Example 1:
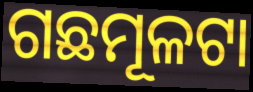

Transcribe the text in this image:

ଗଛମୂଳଟା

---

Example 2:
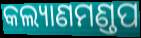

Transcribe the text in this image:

କଲ୍ୟାଣମଣ୍ଡପ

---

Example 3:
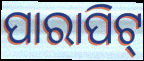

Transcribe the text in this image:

ପାରାପିଟ୍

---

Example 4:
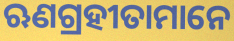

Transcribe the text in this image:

ଋଣଗ୍ରହୀତାମାନେ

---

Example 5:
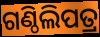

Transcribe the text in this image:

ଗଣ୍ଠିଲିପତ୍ର